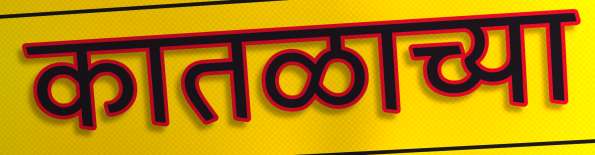
कातळाच्या